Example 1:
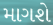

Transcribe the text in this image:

માગશે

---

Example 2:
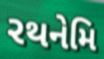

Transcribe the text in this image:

રથનેમિ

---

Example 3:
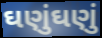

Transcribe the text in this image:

ઘણુંઘણું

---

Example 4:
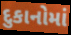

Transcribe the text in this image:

દુકાનોમાં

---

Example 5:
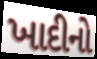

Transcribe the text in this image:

ખાદીનો